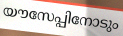
യൗസേപ്പിനോടും